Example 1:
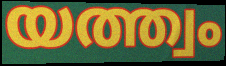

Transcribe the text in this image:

യത്ത്വം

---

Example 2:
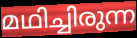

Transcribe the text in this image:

മഥിച്ചിരുന്ന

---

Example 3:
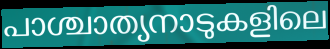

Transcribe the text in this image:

പാശ്ചാത്യനാടുകളിലെ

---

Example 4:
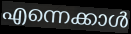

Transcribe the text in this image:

എന്നെക്കാൾ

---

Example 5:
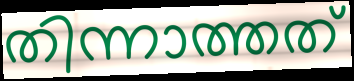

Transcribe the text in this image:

തിന്നാത്തത്